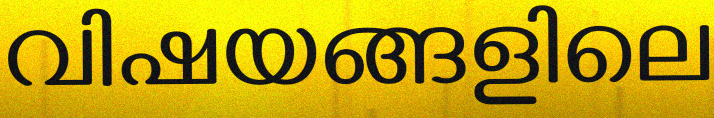
വിഷയങ്ങളിലെ